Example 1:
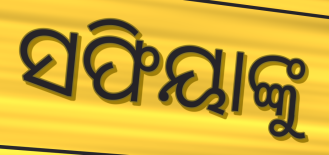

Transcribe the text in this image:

ସଫିୟାଙ୍କୁ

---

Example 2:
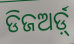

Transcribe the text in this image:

ଡିଜଅର୍ଡ଼୍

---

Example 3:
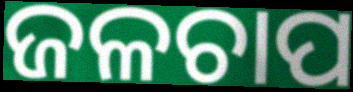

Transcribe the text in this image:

ଜଳଚାପ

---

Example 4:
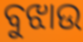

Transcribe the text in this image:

ବୁଝାଉ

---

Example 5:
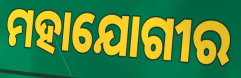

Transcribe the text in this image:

ମହାଯୋଗୀର